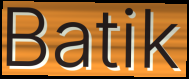
Batik